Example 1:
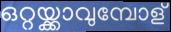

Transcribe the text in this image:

ഒറ്റയ്ക്കാവുമ്പോള്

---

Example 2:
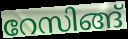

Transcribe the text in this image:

റേസിങ്ങ്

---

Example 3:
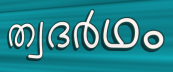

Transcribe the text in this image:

ത്വദർഥം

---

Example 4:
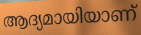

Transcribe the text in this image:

ആദ്യമായിയാണ്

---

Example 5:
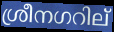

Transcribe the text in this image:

ശ്രീനഗറില്